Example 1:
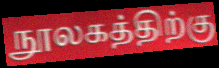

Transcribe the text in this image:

நூலகத்திற்கு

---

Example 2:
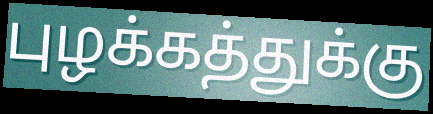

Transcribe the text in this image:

புழக்கத்துக்கு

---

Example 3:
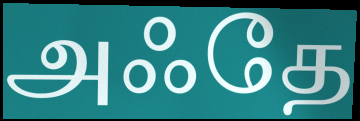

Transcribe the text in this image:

அஃதே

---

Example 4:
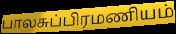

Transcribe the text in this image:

பாலசுப்பிரமணியம்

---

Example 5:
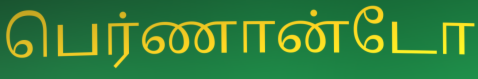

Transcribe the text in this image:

பெர்ணான்டோ